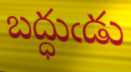
బద్ధుఁడు